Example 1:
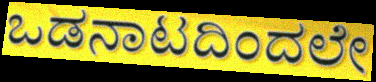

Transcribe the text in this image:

ಒಡನಾಟದಿಂದಲೇ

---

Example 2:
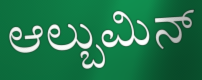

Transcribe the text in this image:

ಆಲ್ಬುಮಿನ್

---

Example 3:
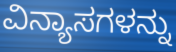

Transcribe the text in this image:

ವಿನ್ಯಾಸಗಳನ್ನು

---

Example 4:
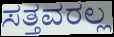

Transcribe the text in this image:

ಸತ್ತವರಲ್ಲ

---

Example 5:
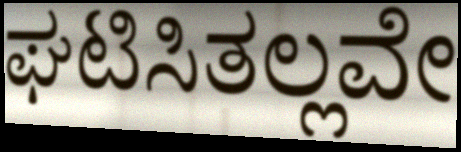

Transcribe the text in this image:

ಘಟಿಸಿತಲ್ಲವೇ